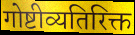
गोष्टीव्यतिरिक्त